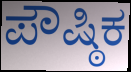
ಪೌಷ್ಠಿಕ